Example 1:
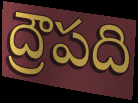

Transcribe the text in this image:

ద్రౌపది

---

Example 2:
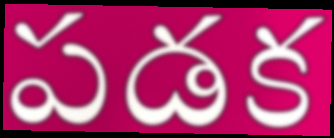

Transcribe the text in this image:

పడక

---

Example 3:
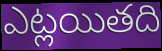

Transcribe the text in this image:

ఎట్లయితది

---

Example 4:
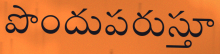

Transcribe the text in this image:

పొందుపరుస్తూ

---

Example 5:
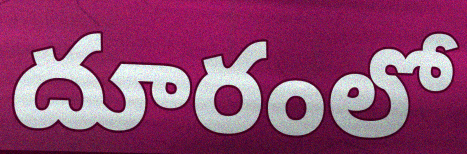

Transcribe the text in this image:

దూరంలో